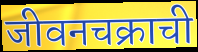
जीवनचक्राची